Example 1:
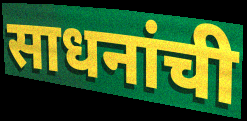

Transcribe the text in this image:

साधनांची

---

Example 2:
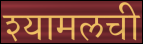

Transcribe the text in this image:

श्यामलची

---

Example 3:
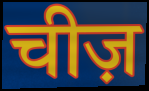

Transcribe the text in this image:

चीज़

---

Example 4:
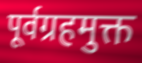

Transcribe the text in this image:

पूर्वग्रहमुक्त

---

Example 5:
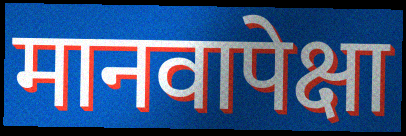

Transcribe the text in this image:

मानवापेक्षा